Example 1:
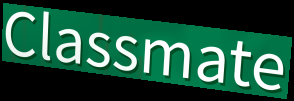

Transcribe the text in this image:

Classmate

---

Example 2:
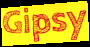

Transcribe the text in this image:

Gipsy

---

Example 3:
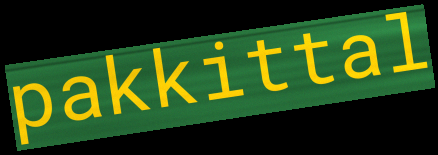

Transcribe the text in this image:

pakkittal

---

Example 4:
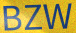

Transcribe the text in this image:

BZW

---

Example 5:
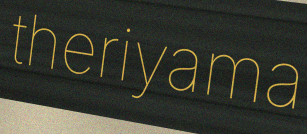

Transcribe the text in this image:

theriyama